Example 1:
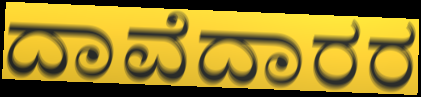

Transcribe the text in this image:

ದಾವೆದಾರರ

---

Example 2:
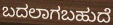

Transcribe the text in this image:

ಬದಲಾಗಬಹುದೆ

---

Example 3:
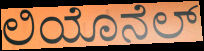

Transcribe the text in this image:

ಲಿಯೊನೆಲ್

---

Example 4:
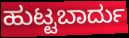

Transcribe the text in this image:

ಹುಟ್ಟಬಾರ್ದು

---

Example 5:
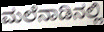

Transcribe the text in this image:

ಮಲೆನಾಡಿನಲ್ಲಿ